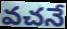
వచనే